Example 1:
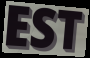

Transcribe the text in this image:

EST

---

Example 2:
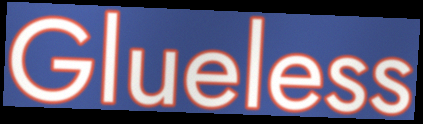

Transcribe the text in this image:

Glueless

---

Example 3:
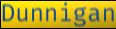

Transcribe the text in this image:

Dunnigan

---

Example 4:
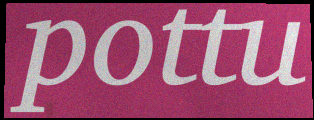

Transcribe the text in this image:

pottu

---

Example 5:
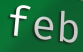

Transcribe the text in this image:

feb